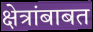
क्षेत्रांबाबत